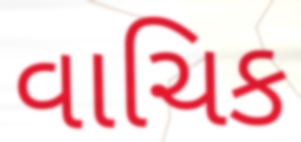
વાચિક